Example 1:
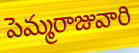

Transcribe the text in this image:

పెమ్మరాజువారి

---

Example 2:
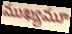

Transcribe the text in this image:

ముఖ్యమూ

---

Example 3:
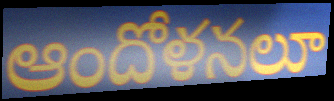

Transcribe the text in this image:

ఆందోళనలూ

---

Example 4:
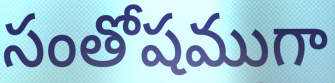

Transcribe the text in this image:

సంతోషముగా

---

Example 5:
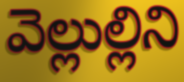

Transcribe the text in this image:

వెల్లుల్లిని